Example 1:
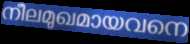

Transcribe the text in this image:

നീലമുഖമായവനെ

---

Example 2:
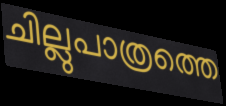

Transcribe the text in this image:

ചില്ലുപാത്രത്തെ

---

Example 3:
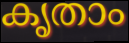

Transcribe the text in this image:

കൃതാം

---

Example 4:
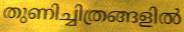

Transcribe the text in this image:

തുണിച്ചിത്രങ്ങളിൽ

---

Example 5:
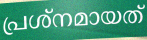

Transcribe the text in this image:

പ്രശ്നമായത്